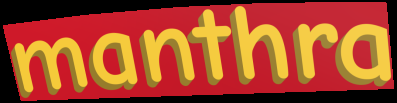
manthra